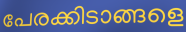
പേരക്കിടാങ്ങളെ